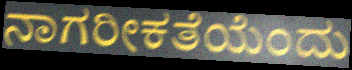
ನಾಗರೀಕತೆಯೆಂದು